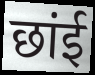
छांई